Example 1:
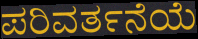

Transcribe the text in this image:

ಪರಿವರ್ತನೆಯೆ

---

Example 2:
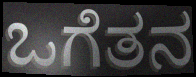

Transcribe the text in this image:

ಒಗೆತನ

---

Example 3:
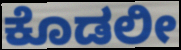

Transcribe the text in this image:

ಕೊಡಲೀ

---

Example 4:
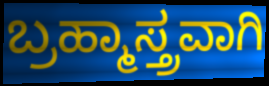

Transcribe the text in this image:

ಬ್ರಹ್ಮಾಸ್ತ್ರವಾಗಿ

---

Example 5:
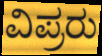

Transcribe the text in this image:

ವಿಪ್ರರು